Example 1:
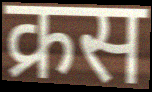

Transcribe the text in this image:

क्रस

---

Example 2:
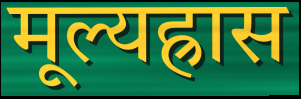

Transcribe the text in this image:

मूल्यह्रास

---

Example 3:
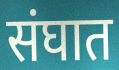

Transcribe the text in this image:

संघात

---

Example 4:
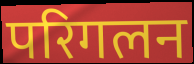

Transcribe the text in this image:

परिगलन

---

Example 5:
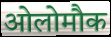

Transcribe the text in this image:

ओलोमौक